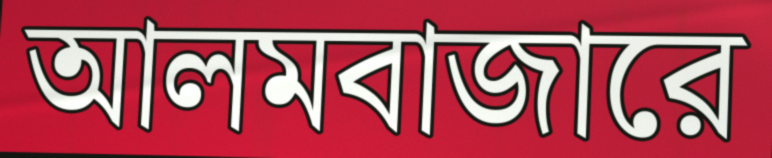
আলমবাজারে